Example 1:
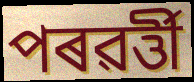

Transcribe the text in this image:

পৰৱৰ্ত্তী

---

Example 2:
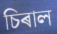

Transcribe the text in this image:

চিৰাল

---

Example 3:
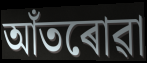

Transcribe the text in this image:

আঁতৰোৱা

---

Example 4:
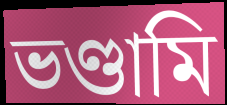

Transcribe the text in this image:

ভণ্ডামি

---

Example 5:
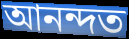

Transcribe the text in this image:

আনন্দত